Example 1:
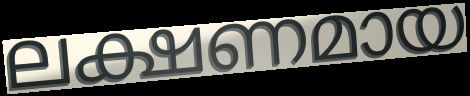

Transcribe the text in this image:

ലക്ഷണമായ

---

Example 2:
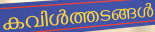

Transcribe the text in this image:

കവിൾത്തടങ്ങൾ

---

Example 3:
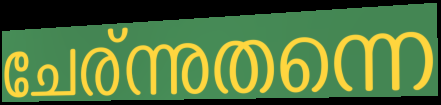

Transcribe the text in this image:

ചേര്ന്നുതന്നെ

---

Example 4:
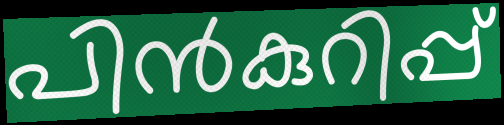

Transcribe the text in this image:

പിൻകുറിപ്പ്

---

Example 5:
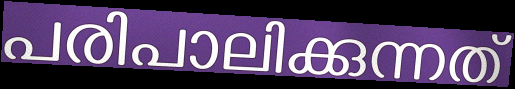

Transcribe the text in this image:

പരിപാലിക്കുന്നത്